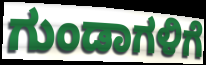
ಗುಂಡಾಗಳಿಗೆ